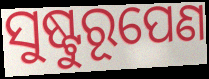
ସୁଷ୍ଟୁରୂପେଣ